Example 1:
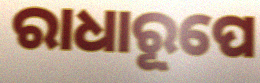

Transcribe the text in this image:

ରାଧାରୂପେ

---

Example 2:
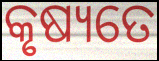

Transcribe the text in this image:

କୃଷ୍ୟତେ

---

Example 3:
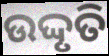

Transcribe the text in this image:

ଉଦ୍ଦୃତି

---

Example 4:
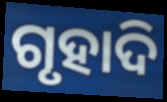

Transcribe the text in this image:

ଗୃହାଦି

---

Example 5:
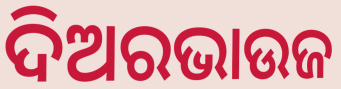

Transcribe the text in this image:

ଦିଅରଭାଉଜ